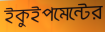
ইকুইপমেন্টের